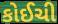
કોઈચી